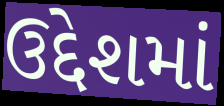
ઉદ્દેશમાં